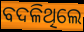
ବଦଳିଥିଲେ